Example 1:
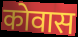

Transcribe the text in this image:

कोवास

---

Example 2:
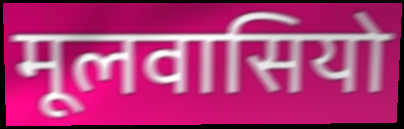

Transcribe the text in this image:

मूलवासियो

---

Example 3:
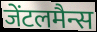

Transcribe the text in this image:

जेंटलमैन्स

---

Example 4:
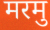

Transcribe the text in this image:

मरमु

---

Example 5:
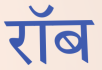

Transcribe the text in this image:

रॉब